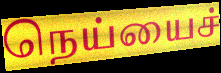
நெய்யைச்